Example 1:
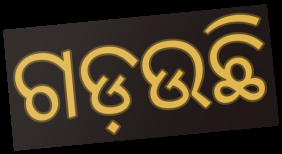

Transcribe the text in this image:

ଗଡ଼ଉଛି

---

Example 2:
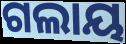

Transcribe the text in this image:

ଗଲାୟ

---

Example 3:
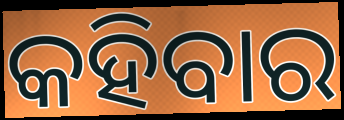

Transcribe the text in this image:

କହିବାର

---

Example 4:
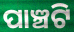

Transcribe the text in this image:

ପାଞ୍ଚଟି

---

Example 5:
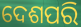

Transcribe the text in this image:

ଦେଶପରି